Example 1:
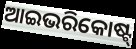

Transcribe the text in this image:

ଆଇଭରିକୋଷ୍ଟ୍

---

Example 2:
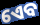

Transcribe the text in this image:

ଏେବ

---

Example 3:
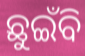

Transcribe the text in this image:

ଛୁଇଁବି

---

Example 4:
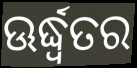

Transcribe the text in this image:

ଊର୍ଦ୍ଧ୍ଵତର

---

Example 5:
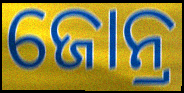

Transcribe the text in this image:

ଜୋନ୍ର